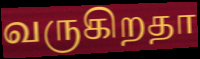
வருகிறதா